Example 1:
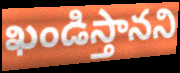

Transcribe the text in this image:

ఖండిస్తానని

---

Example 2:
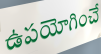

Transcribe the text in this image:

ఉపయోగించే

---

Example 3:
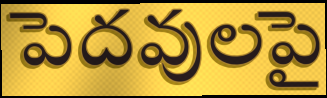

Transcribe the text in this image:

పెదవులపై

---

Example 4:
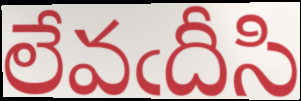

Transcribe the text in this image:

లేవఁదీసి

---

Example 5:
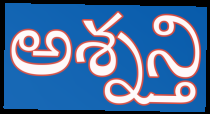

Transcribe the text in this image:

అశ్నన్తి